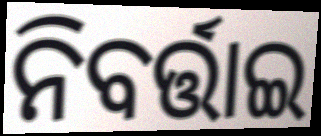
ନିବର୍ତ୍ତାଇ